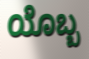
ಯೊಬ್ಬ